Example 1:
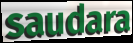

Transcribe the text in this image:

saudara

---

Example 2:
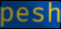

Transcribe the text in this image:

pesh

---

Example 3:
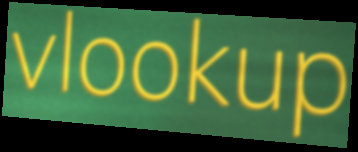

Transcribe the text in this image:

vlookup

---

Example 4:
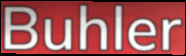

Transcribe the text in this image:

Buhler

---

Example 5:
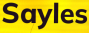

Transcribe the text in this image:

Sayles